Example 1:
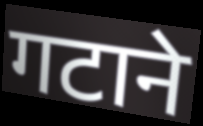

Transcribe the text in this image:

गटाने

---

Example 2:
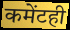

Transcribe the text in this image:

कमेंटही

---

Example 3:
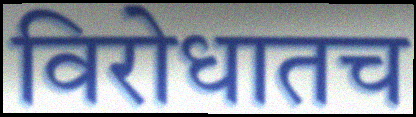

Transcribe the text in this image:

विरोधातच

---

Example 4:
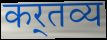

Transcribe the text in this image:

कर्तव्य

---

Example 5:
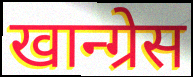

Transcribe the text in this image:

खान्ग्रेस